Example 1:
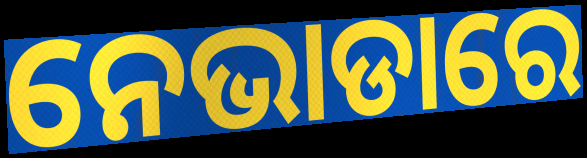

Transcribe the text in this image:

ନେଭାଡାରେ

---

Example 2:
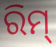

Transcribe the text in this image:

ରିମ୍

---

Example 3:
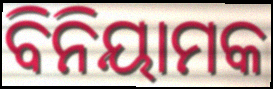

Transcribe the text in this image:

ବିନିୟାମକ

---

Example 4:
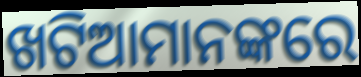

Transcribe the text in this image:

ଖଟିଆମାନଙ୍କରେ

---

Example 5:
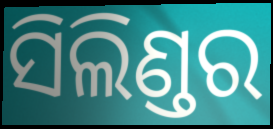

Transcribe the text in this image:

ସିଲିଣ୍ଡର